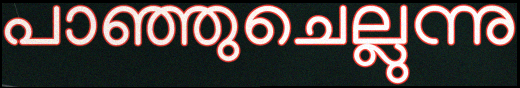
പാഞ്ഞുചെല്ലുന്നു